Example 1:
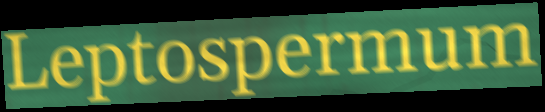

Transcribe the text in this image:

Leptospermum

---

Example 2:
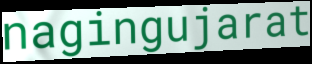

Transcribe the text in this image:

nagingujarat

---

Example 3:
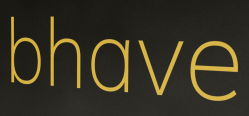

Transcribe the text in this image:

bhave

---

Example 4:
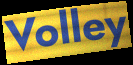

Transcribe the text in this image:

Volley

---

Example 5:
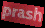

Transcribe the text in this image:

prash